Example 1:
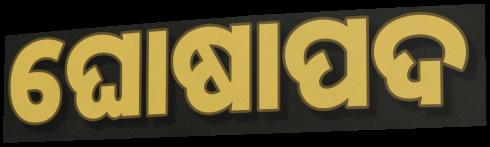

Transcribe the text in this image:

ଘୋଷାପଦ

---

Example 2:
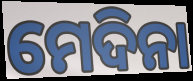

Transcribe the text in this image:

ମେଦିନା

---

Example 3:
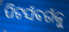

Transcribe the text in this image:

ପିଟର୍ସବର୍ଗକୁ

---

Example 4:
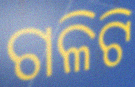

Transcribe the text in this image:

ଗଳିଟି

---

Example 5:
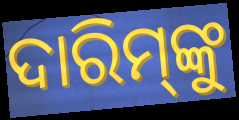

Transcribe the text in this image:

ଦାରିମ୍‍ଙ୍କୁ